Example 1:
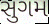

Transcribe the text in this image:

સુગમ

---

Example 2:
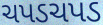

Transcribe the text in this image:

ચપડચપડ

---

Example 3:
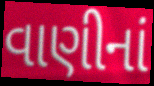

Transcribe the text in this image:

વાણીનાં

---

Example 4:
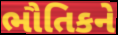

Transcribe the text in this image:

ભૌતિકને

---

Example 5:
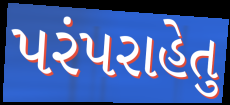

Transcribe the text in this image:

પરંપરાહેતુ